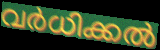
വർധിക്കൽ